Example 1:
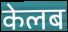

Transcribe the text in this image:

केलब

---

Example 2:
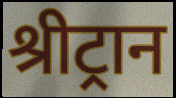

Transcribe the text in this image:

श्रीट्रान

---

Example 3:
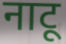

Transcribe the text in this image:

नाटू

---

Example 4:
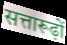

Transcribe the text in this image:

सत्तारूढ़ों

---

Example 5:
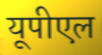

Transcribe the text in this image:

यूपीएल